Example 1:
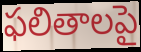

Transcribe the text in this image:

ఫలితాలపై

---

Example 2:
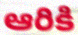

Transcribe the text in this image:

ఆరికి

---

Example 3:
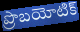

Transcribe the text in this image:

ప్రొబయోటిక్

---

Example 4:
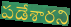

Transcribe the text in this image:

పడేశారని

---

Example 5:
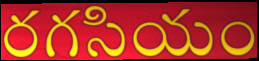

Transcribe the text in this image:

రగసియం